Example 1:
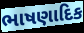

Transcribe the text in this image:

ભાષણાદિક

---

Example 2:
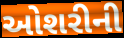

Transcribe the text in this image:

ઓશરીની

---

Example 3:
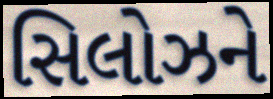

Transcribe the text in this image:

સિલોઝને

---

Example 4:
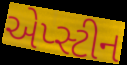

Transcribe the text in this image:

એપ્સ્ટીન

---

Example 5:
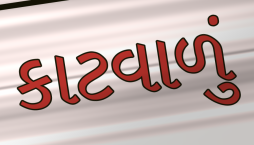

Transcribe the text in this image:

કાટવાળું